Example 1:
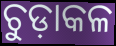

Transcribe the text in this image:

ଚୁଡ଼ାକଳ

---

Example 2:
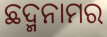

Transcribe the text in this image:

ଛଦ୍ମନାମର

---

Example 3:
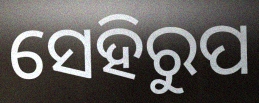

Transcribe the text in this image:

ସେହିରୁପ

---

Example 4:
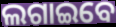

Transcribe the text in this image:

ଲଗାଇବେ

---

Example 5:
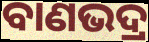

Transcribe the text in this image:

ବାଣଭଦ୍ର